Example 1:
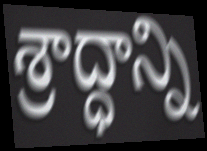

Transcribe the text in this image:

శ్రాద్ధాన్ని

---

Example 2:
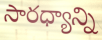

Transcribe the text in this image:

సారధ్యాన్ని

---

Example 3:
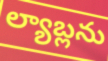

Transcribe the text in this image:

ల్యాబ్లను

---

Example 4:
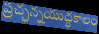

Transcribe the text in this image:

ప్రచ్ఛన్నయుద్ధకాలం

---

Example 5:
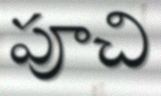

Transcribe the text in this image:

పూచి